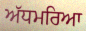
ਅੱਧਮਰਿਆ